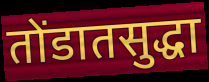
तोंडातसुद्धा